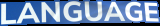
LANGUAGE